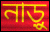
নাড়ু